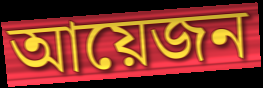
আয়েজন